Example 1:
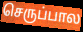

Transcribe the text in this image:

செருப்பால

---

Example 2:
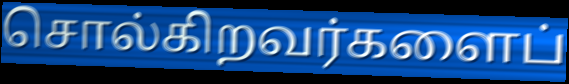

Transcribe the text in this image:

சொல்கிறவர்களைப்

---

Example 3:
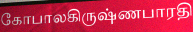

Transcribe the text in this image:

கோபாலகிருஷ்ணபாரதி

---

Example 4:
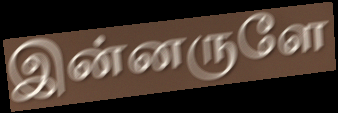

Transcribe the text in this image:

இன்னருளே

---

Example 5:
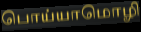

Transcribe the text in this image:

பொய்யாமொழி